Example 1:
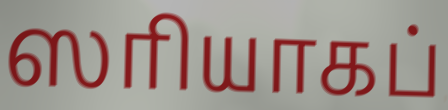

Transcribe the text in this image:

ஸரியாகப்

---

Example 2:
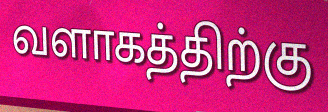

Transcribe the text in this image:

வளாகத்திற்கு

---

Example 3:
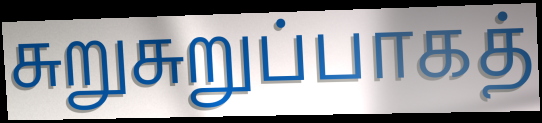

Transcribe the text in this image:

சுறுசுறுப்பாகத்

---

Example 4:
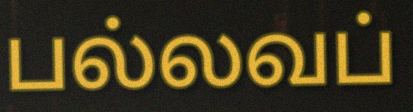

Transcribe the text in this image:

பல்லவப்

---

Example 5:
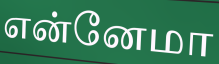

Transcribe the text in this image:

என்னேமா